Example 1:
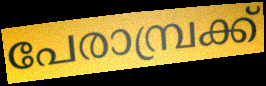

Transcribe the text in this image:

പേരാമ്പ്രക്ക്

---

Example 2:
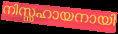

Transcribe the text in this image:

നിസ്സഹായനായി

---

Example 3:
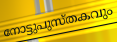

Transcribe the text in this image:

നോട്ടുപുസ്തകവും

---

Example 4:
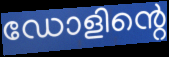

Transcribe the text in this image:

ഡോളിന്റെ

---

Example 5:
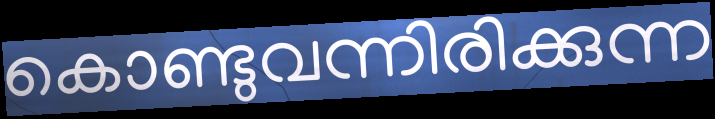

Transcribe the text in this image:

കൊണ്ടുവന്നിരിക്കുന്ന